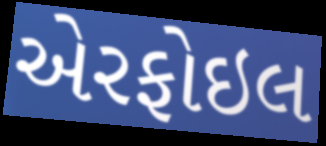
એરફોઇલ